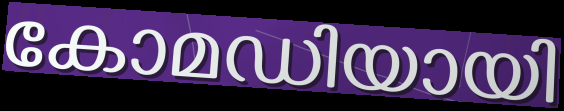
കോമഡിയായി